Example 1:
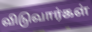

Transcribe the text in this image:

விடுவார்கள்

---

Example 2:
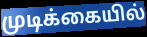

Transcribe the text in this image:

முடிக்கையில்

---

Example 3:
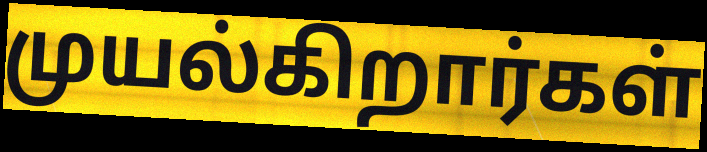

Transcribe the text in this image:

முயல்கிறார்கள்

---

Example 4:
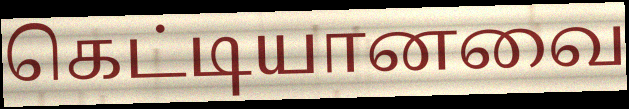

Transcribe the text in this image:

கெட்டியானவை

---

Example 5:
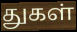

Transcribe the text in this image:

துகள்